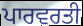
ਪਾਰਵਰਤੀ